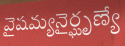
వైషమ్యనైర్ఘృణ్యే